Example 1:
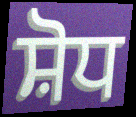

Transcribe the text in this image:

ਸ਼ੋਧ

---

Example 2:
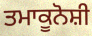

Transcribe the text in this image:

ਤਮਾਕੂਨੋਸ਼ੀ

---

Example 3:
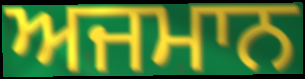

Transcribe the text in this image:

ਅਜਮਾਨ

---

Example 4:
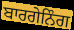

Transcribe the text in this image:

ਬਾਰਗੇਨਿੰਗ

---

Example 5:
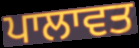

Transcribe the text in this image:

ਪਾਲਾਵਤ